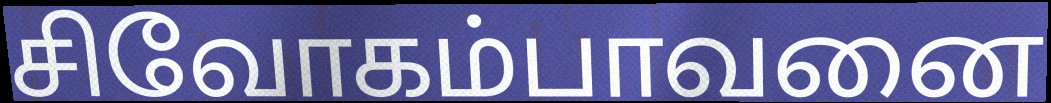
சிவோகம்பாவனை